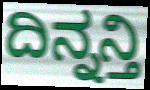
ದಿನ್ನನ್ತಿ